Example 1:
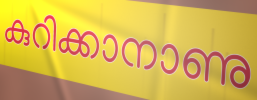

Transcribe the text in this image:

കുറിക്കാനാണു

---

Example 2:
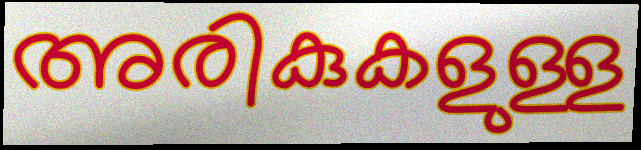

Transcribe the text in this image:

അരികുകളുള്ള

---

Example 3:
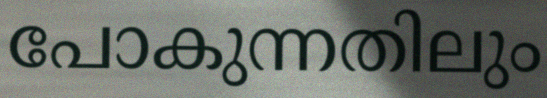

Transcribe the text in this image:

പോകുന്നതിലും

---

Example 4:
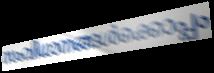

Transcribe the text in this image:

സംവിധാനങ്ങൾക്കൊപ്പം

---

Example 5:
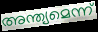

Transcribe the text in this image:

അന്ത്യമെന്ന്